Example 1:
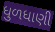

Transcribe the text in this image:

ધુળધાણી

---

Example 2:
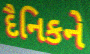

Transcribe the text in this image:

દૈનિકને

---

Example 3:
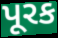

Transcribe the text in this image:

પૂરક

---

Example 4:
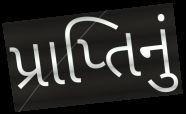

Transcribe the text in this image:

પ્રાપ્તિનું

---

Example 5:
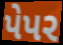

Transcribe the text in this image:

પેપર